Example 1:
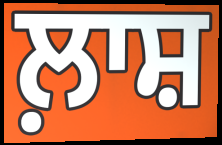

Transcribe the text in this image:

ਲ਼ਾਸ਼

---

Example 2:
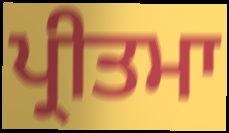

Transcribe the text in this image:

ਪ੍ਰੀਤਮਾ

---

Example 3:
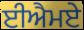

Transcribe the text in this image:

ਈਐਮਏ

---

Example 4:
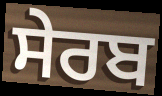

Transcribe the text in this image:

ਸੇਰਬ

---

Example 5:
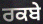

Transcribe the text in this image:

ਰਕਬੇ